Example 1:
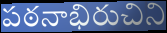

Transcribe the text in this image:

పఠనాభిరుచిని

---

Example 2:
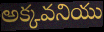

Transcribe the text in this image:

అక్కవనియు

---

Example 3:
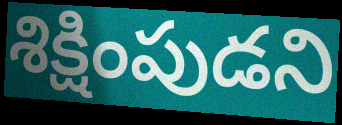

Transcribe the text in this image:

శిక్షింపుడని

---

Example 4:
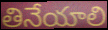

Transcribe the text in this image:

తినేయాలి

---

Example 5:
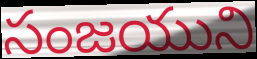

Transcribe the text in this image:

సంజయుని